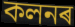
কলনৰ